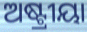
ଅଷ୍ଟ୍ରୀୟା